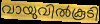
വായുവിൽകൂടി